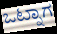
ಒಟ್ನಾಗ